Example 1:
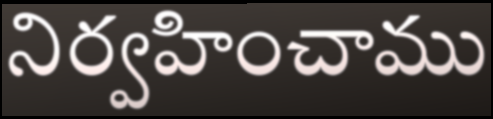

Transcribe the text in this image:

నిర్వహించాము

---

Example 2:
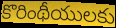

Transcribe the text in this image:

కొరింథీయులకు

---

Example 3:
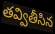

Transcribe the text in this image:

తవ్వితీసిన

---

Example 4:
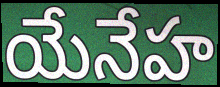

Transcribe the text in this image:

యేనేహ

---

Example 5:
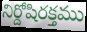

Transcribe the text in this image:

నిర్దోషిరక్తము